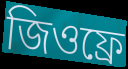
জিওফ্ৰে